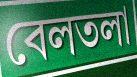
বেলতলা